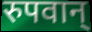
रुपवान्